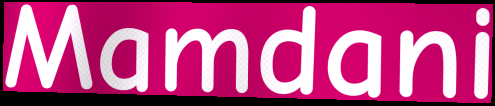
Mamdani